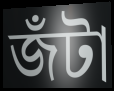
জঁটা